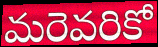
మరెవరికో